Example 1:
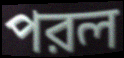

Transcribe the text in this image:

পরল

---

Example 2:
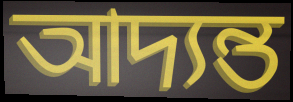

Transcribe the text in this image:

আদ্যন্ত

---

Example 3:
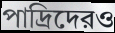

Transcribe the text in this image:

পাদ্রিদেরও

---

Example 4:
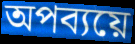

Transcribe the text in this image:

অপব্যয়ে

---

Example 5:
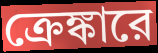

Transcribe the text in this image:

ক্রেঙ্কারে